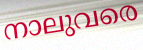
നാലുവരെ